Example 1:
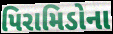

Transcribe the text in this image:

પિરામિડોના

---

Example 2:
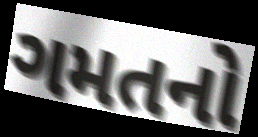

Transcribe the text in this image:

ગમતનો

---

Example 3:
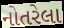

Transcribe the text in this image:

નોતરેલા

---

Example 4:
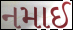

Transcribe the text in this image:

નમાઈ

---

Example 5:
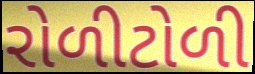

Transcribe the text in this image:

રોળીટોળી